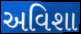
અવિશા